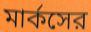
মার্কসের